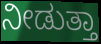
ನೀಡುತ್ತಾ